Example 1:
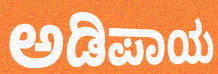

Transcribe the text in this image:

ಅಡಿಪಾಯ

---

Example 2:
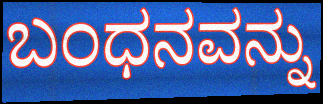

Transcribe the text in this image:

ಬಂಧನವನ್ನು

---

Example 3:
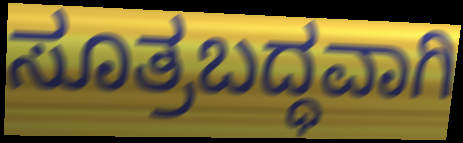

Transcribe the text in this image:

ಸೂತ್ರಬದ್ಧವಾಗಿ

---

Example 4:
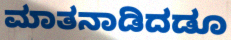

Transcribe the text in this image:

ಮಾತನಾಡಿದಡೂ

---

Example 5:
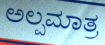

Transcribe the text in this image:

ಅಲ್ಪಮಾತ್ರ